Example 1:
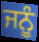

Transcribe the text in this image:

ਜਨੂੰ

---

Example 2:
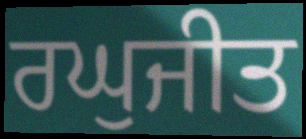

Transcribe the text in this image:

ਰਘੁਜੀਤ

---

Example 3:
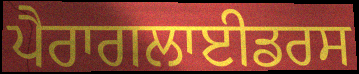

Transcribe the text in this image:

ਪੈਰਾਗਲਾਈਡਰਸ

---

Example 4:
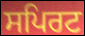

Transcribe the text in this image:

ਸਪਿਰਟ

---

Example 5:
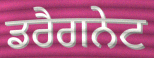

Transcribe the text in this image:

ਡਰੈਗਨੇਟ